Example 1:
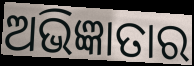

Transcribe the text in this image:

ଅଭିଜ୍ଞାତାର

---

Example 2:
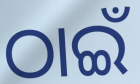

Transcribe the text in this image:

ଠାଇଁ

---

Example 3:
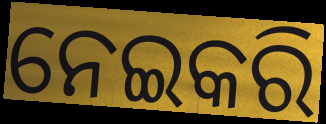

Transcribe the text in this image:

ନେଇକରି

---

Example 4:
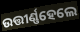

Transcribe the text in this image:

ଉତ୍ତୀର୍ଣ୍ଣହେଲେ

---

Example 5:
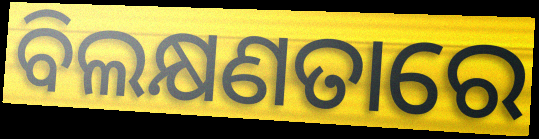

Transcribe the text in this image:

ବିଲକ୍ଷଣତାରେ